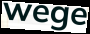
wege